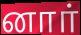
னார்